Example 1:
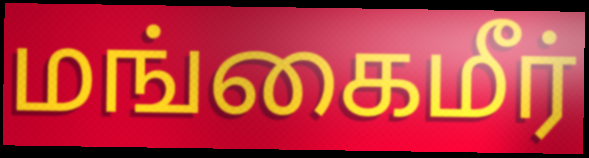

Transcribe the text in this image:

மங்கைமீர்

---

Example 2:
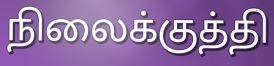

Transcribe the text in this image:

நிலைக்குத்தி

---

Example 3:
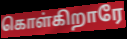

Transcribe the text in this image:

கொள்கிறாரே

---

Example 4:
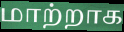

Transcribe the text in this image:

மாற்றாக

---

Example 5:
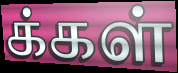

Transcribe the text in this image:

க்கள்